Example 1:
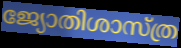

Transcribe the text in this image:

ജ്യോതിശാസ്ത്ര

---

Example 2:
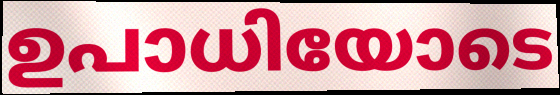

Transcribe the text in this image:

ഉപാധിയോടെ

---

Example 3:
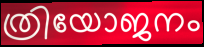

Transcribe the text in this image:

ത്രിയോജനം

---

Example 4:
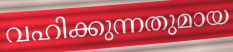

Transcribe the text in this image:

വഹിക്കുന്നതുമായ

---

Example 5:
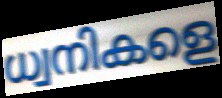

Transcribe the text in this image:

ധ്വനികളെ